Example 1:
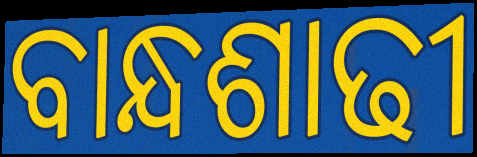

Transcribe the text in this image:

ବାନ୍ଧଶାଢୀ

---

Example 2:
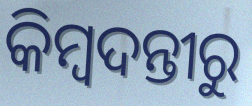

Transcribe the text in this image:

କିମ୍ବଦନ୍ତୀରୁ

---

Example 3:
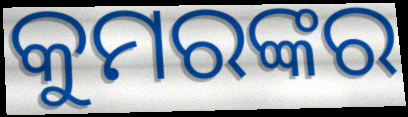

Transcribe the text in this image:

କୁମରଙ୍କର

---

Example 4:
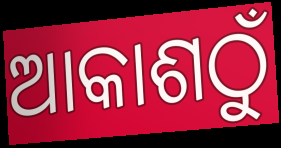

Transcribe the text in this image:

ଆକାଶଠୁଁ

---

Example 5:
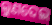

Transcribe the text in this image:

ଲୁଣଦେଇ